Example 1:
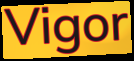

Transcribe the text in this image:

Vigor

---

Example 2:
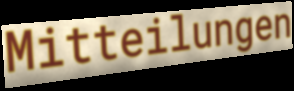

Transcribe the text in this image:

Mitteilungen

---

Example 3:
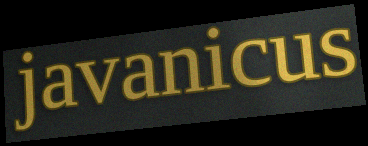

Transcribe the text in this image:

javanicus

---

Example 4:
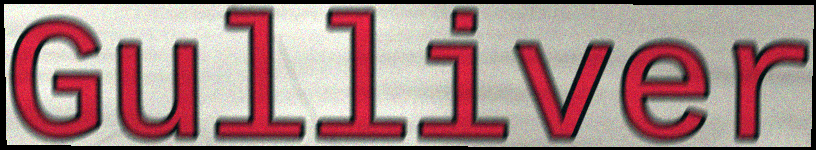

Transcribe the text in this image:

Gulliver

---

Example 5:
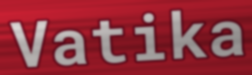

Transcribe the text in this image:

Vatika